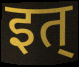
इत्